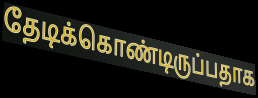
தேடிக்கொண்டிருப்பதாக